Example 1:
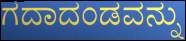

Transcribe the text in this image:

ಗದಾದಂಡವನ್ನು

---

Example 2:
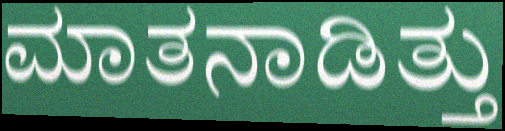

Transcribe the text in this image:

ಮಾತನಾಡಿತ್ತು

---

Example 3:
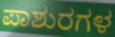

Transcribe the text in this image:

ಪಾಶುರಗಳ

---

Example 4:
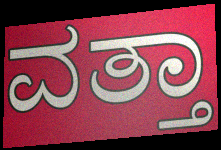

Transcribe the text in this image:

ವತ್ತಾ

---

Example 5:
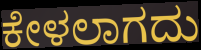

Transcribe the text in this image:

ಕೇಳಲಾಗದು